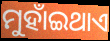
ମୁହାଁଇଥାଏ